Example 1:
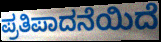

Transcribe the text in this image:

ಪ್ರತಿಪಾದನೆಯಿದೆ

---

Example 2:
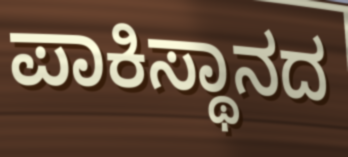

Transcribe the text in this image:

ಪಾಕಿಸ್ಥಾನದ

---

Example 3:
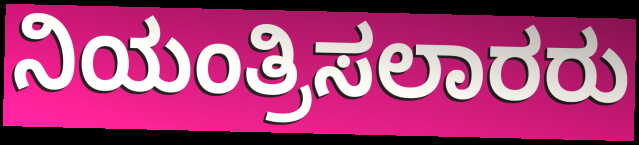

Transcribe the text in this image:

ನಿಯಂತ್ರಿಸಲಾರರು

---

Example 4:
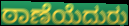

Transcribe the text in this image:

ಠಾಣೆಯೆದುರು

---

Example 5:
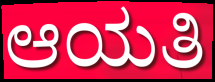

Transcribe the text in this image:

ಆಯತಿ